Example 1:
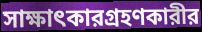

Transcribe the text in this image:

সাক্ষাৎকারগ্রহণকারীর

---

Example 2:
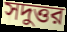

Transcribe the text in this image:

সদুত্তর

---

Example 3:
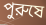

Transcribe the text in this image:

পুরুষে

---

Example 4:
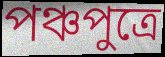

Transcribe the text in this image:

পঞ্চপুত্রে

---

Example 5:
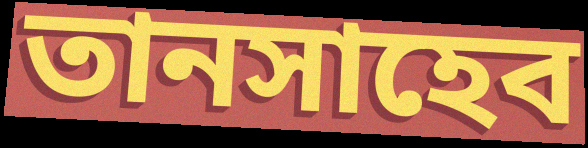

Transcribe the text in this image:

তানসাহেব